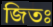
জিতঃ